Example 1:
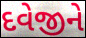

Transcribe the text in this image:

દવેજીને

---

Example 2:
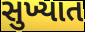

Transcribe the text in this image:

સુખ્યાત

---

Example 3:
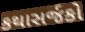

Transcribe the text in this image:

કથાસર્જકો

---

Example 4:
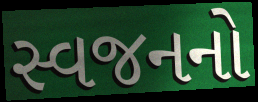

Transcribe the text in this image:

સ્વજનનો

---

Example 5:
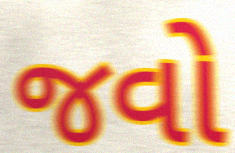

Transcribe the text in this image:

જવો